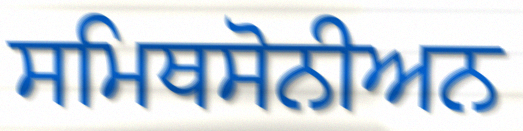
ਸਮਿਥਸੋਨੀਅਨ